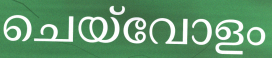
ചെയ്‌വോളം